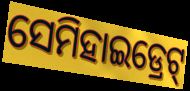
ସେମିହାଇଡ୍ରେଟ୍